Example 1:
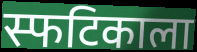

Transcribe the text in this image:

स्फटिकाला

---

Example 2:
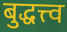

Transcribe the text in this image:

बुद्धत्त्व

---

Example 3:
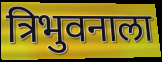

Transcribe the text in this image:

त्रिभुवनाला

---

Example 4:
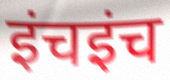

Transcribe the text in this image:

इंचइंच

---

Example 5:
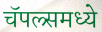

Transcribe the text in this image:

चॅपल्समध्ये